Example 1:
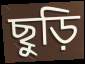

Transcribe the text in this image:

ছুড়ি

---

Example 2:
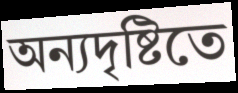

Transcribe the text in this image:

অন্যদৃষ্টিতে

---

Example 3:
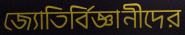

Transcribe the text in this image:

জ্যোতির্বিজ্ঞানীদের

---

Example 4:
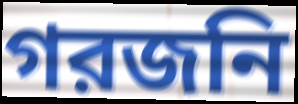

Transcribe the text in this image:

গরজনি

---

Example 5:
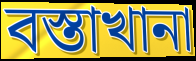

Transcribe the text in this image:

বস্তাখানা